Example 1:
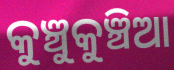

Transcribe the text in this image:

କୁଞ୍ଚୁକୁଞ୍ଚିଆ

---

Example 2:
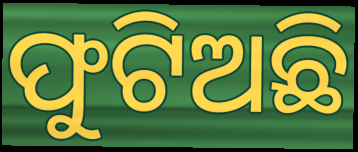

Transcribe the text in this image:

ଫୁଟିଅଛି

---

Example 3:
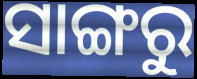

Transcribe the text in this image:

ସାଙ୍ଗରୁ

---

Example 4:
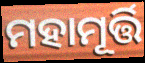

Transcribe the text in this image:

ମହାମୂର୍ତ୍ତି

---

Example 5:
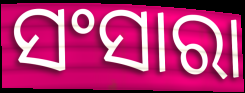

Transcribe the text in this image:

ସଂସାରା